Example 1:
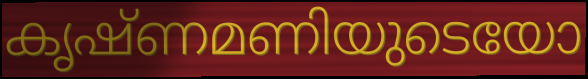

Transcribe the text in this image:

കൃഷ്ണമണിയുടെയോ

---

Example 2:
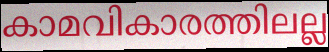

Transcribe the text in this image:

കാമവികാരത്തിലല്ല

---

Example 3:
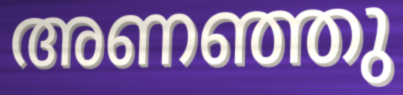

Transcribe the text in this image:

അണഞ്ഞു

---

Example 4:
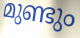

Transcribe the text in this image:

മുണ്ടും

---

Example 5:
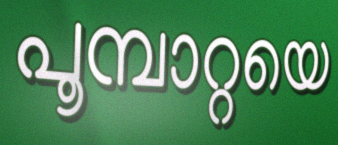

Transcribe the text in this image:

പൂമ്പാറ്റയെ